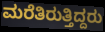
ಮರೆತಿರುತ್ತಿದ್ದರು